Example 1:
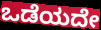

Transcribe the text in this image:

ಒಡೆಯದೇ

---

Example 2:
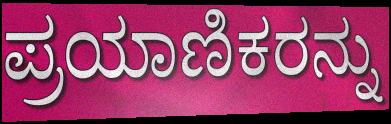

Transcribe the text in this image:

ಪ್ರಯಾಣಿಕರನ್ನು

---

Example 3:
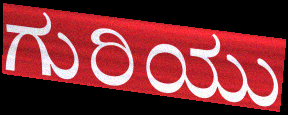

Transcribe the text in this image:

ಗುರಿಯು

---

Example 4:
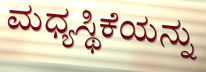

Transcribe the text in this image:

ಮಧ್ಯಸ್ಥಿಕೆಯನ್ನು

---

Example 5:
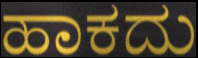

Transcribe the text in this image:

ಹಾಕದು